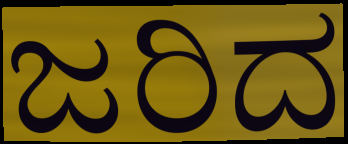
ಜರಿದ